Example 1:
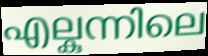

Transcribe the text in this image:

എല്കുന്നിലെ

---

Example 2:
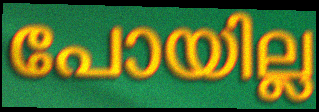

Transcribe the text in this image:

പോയില്ല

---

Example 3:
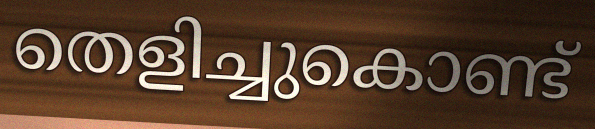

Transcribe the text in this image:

തെളിച്ചുകൊണ്ട്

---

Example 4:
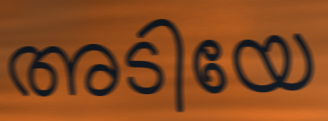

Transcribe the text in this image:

അടിയേ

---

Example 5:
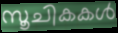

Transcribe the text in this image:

സൂചികകൾ